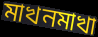
মাখনমাখা